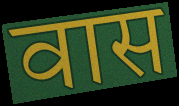
वास